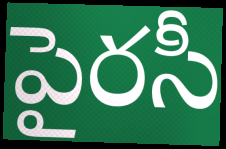
పైరసీ